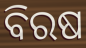
ବିରଷ